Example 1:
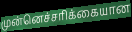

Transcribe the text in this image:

முன்னெச்சரிக்கையான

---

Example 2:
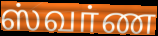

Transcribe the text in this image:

ஸ்வர்ண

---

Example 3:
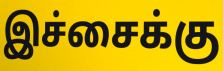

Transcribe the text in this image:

இச்சைக்கு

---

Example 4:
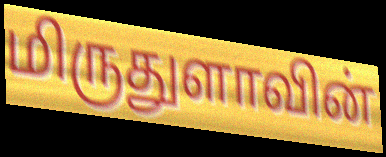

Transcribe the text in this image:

மிருதுளாவின்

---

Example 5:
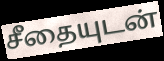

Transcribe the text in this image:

சீதையுடன்